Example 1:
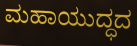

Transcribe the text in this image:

ಮಹಾಯುದ್ಧದ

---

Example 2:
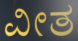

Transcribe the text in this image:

ವೀತ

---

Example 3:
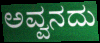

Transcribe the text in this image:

ಅವ್ವನದು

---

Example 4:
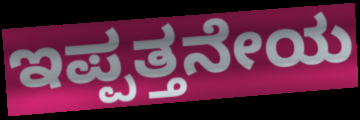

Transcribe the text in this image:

ಇಪ್ಪತ್ತನೇಯ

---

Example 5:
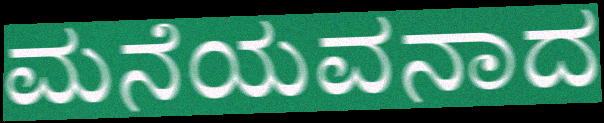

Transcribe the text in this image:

ಮನೆಯವನಾದ